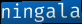
ningala